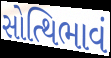
સોત્થિભાવં